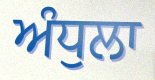
ਅੰਧੁਲਾ